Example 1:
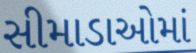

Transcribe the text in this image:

સીમાડાઓમાં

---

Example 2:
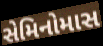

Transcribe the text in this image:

સેમિનોમાસ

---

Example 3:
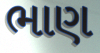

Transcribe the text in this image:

ભાણ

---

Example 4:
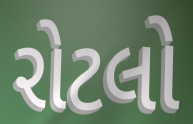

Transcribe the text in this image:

રોટલો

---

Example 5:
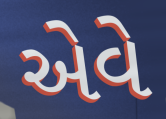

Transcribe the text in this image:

એવે